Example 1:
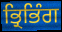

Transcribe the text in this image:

ਭ੍ਰਿਭਿੰਗ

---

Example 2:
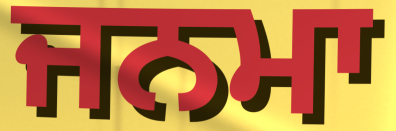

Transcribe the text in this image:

ਜਨਮਾ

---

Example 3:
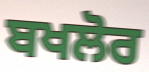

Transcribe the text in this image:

ਬਖਲੋਰ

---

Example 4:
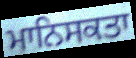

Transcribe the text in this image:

ਮਾਨਿਸਕਤਾ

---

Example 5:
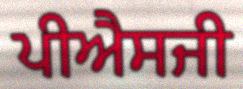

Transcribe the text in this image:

ਪੀਐਸਜੀ